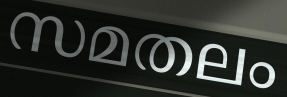
സമതലം